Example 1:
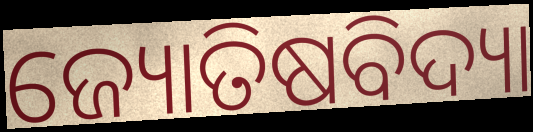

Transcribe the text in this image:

ଜ୍ୟୋତିଷବିଦ୍ୟା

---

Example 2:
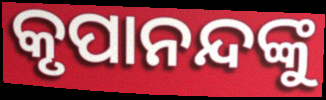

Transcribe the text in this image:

କୃପାନନ୍ଦଙ୍କୁ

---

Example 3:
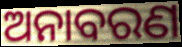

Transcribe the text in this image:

ଅନାବରଣ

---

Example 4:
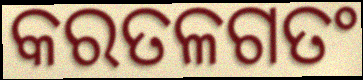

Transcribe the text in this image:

କରତଳଗତଂ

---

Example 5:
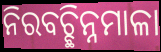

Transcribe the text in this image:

ନିରବଚ୍ଛିନ୍ନମାଳା